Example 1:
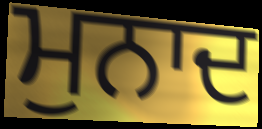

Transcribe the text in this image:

ਮੁਨਾਦ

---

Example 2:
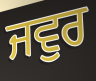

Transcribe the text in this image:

ਜਵੁਰ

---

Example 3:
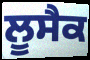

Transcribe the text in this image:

ਲੂਸੈਕ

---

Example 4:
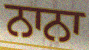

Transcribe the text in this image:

ਨਾਨਾ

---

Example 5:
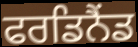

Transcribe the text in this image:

ਫਰਡਿਨੈਂਡ